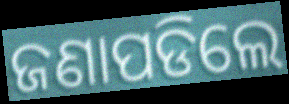
ଜଣାପଡିଲେ